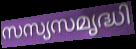
സസ്യസമൃദ്ധി